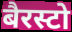
बैरस्टो